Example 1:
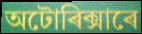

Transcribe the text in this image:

অটোৰিক্সাৰে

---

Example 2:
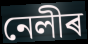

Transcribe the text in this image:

নেলীৰ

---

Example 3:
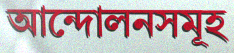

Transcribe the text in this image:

আন্দোলনসমূহ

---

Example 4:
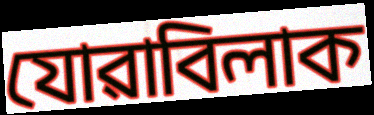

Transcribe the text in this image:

যোৱাবিলাক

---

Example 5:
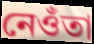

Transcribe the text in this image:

নেওঁতা